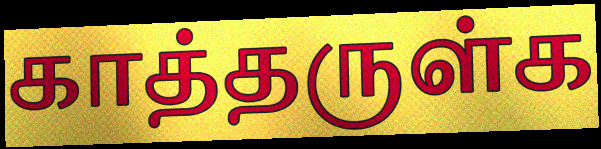
காத்தருள்க